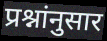
प्रश्नांनुसार